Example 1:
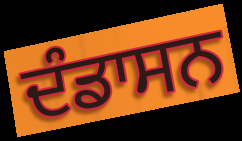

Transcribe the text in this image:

ਦੰਡਾਸਨ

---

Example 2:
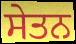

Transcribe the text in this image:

ਸੇਤਨ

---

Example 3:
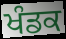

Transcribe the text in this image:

ਖੰਡਕ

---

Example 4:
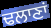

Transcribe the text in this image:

ਢਲਾਣਾਂ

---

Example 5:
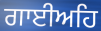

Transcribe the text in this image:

ਗਾਈਅਹਿ